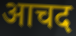
आचद